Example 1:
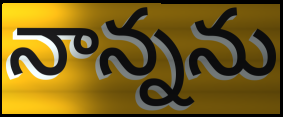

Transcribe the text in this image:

నాన్నను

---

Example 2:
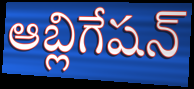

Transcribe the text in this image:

ఆబ్లిగేషన్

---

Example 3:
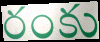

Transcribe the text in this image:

రంకు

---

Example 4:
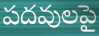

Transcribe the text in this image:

పదవులపై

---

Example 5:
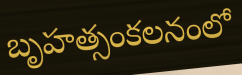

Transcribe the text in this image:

బృహత్సంకలనంలో